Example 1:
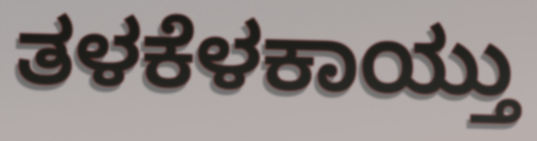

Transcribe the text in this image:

ತಳಕೆಳಕಾಯ್ತು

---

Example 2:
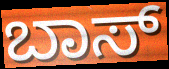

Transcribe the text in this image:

ಬಾಸ್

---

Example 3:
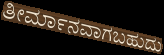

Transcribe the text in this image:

ತೀರ್ಮಾನವಾಗಬಹುದು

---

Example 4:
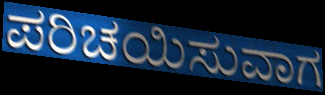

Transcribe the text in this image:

ಪರಿಚಯಿಸುವಾಗ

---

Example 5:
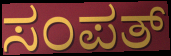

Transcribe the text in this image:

ಸಂಪತ್